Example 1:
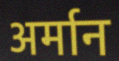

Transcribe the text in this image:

अर्मान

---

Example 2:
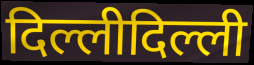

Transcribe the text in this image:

दिल्लीदिल्ली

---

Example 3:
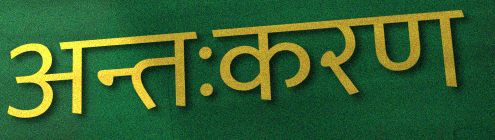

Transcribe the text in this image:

अन्तःकरण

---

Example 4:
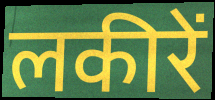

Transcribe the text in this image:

लकीरें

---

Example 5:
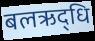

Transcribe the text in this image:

बलऋद्धि